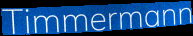
Timmermann